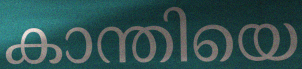
കാന്തിയെ